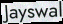
Jayswal